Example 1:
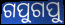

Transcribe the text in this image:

ଗପୁଗପୁ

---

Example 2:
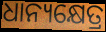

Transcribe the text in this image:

ଧାନ୍ୟକ୍ଷେତ୍ର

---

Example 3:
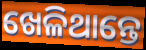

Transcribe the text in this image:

ଖେଳିଥାନ୍ତେ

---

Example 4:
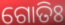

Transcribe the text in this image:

ଗୋତିଃ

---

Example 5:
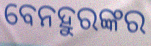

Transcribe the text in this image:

ବେନହୁରଙ୍କର